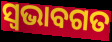
ସ୍ୱଭାବଗତ